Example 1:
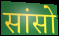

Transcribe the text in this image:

सांसो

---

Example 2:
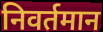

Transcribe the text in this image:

निवर्तमान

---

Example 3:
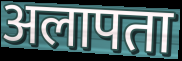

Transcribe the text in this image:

अलापता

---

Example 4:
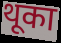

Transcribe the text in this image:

थूका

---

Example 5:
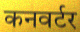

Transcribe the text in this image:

कनवर्टर